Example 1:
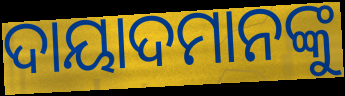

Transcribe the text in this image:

ଦାୟାଦମାନଙ୍କୁ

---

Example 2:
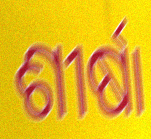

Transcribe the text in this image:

ଶୀର୍ଷା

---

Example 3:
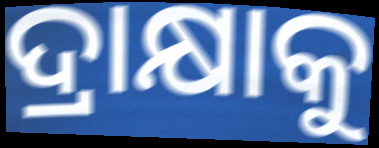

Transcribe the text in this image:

ଦ୍ରାକ୍ଷାକୁ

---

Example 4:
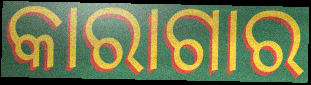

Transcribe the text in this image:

କାରାଗାର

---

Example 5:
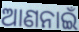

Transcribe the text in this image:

ଆଣନାଇଁ